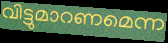
വിട്ടുമാറണമെന്ന